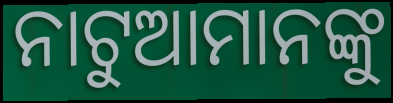
ନାଟୁଆମାନଙ୍କୁ